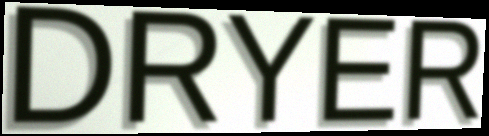
DRYER